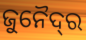
ଜୁନୈଦ୍‌ର